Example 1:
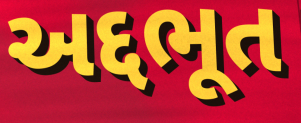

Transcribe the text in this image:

અદ્દભૂત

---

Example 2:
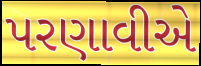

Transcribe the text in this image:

પરણાવીએ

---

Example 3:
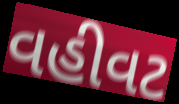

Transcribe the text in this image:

વહીવટ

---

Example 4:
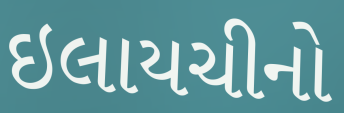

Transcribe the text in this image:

ઇલાયચીનો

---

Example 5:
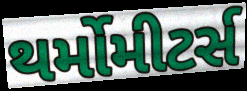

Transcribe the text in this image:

થર્મોમીટર્સ